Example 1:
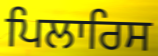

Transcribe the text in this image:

ਪਿਲਾਰਿਸ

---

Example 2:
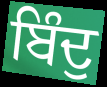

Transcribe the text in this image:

ਬਿੰਦੁ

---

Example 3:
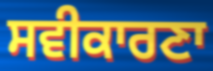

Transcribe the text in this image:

ਸਵੀਕਾਰਣਾ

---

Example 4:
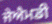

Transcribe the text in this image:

ਜੇਐਮਡੀ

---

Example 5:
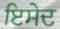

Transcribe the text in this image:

ਇਸੇਦ